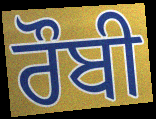
ਰੌਬੀ